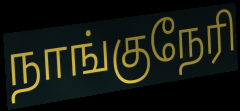
நாங்குநேரி